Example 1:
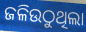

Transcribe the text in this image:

ଜଳିଉଠୁଥିଲା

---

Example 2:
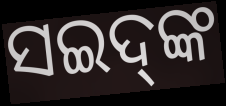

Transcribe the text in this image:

ସଇଦ୍‌ଙ୍କ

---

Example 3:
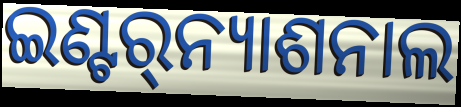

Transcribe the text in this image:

ଇଣ୍ଟର୍‌ନ୍ୟାଶନାଲ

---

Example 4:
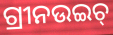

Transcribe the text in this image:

ଗ୍ରୀନଉଇଚ୍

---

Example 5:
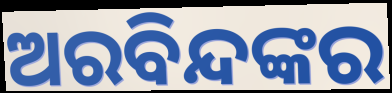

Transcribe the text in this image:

ଅରବିନ୍ଦଙ୍କର